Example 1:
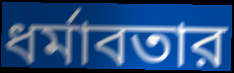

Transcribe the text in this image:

ধর্মাবতার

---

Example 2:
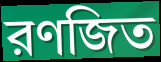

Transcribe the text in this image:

রণজিত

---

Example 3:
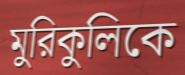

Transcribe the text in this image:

মুরিকুলিকে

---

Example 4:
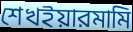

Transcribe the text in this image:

শেখইয়ারমামি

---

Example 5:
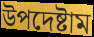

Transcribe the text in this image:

উপদেষ্টাম